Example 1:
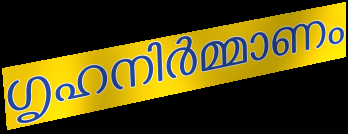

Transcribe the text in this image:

ഗൃഹനിർമ്മാണം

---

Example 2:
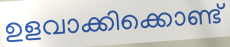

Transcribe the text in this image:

ഉളവാക്കിക്കൊണ്ട്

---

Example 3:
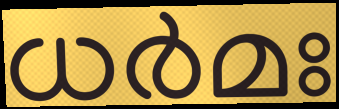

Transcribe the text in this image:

ധർമഃ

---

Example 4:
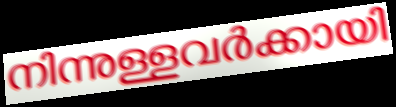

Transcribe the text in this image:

നിന്നുള്ളവർക്കായി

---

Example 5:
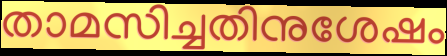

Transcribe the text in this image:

താമസിച്ചതിനുശേഷം